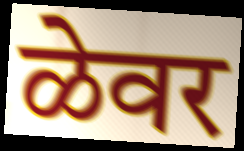
ळेवर